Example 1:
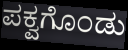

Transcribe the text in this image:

ಪಕ್ವಗೊಂಡು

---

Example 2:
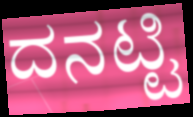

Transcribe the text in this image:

ದನಟ್ಟಿ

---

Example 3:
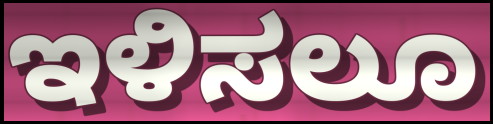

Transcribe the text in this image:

ಇಳಿಸಲೂ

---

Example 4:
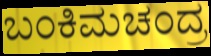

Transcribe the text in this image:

ಬಂಕಿಮಚಂದ್ರ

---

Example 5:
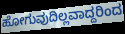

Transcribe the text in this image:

ಹೋಗುವುದಿಲ್ಲವಾದ್ದರಿಂದ